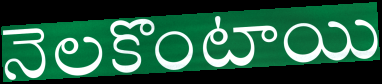
నెలకొంటాయి